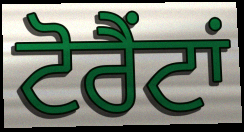
ਟੋਰੈਂਟਾਂ